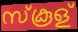
സ്കൂള്